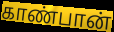
காண்பான்